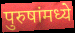
पुरुषांमध्ये